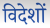
विदेशों